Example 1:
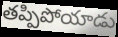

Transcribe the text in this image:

తప్పిపోయాడు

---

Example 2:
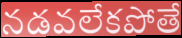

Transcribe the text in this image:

నడవలేకపోతే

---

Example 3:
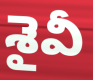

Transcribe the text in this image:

శైవీ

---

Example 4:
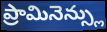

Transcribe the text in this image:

ప్రామినెన్స్లు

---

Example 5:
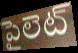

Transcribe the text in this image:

పైలెట్